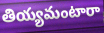
తియ్యమంటారా